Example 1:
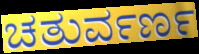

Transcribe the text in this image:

ಚತುರ್ವರ್ಣ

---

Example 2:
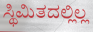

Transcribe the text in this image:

ಸ್ಥಿಮಿತದಲ್ಲಿಲ್ಲ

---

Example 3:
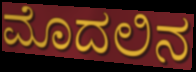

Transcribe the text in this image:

ಮೊದಲಿನ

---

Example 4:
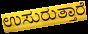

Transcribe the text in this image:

ಉಸುರುತ್ತಾರೆ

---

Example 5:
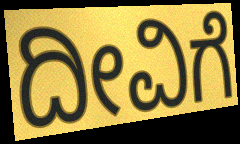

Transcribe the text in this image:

ದೀವಿಗೆ